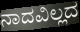
ನಾದವಿಲ್ಲದ